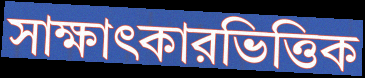
সাক্ষাৎকারভিত্তিক